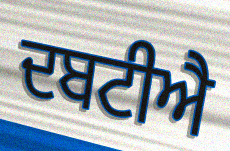
ਦਬਟੀਐ